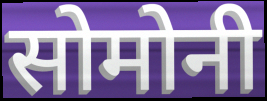
सोमोनी